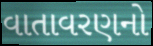
વાતાવરણનો